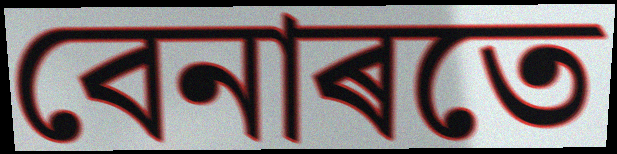
বেনাৰতে